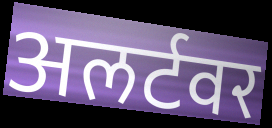
अलर्टवर